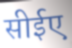
सीईए